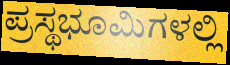
ಪ್ರಸ್ಥಭೂಮಿಗಳಲ್ಲಿ